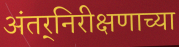
अंतर्निरीक्षणाच्या